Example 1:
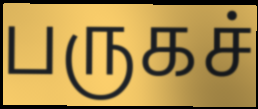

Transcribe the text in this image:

பருகச்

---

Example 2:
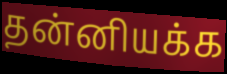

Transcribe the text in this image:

தன்னியக்க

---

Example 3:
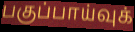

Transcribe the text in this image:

பகுப்பாய்வுக்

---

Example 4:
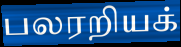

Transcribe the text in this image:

பலரறியக்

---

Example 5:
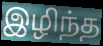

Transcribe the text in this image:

இழிந்த